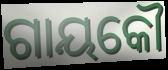
ଗାୟକୌ